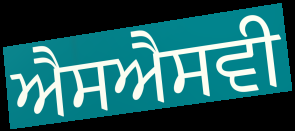
ਐਸਐਸਵੀ